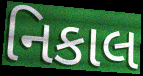
નિકાલ